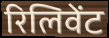
रिलिवेंट